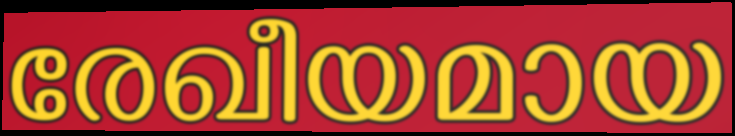
രേഖീയമായ